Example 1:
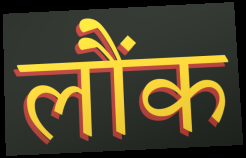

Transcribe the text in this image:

लौंक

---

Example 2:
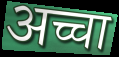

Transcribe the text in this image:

अच्चा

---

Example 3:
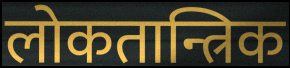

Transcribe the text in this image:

लोकतान्त्रिक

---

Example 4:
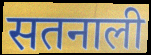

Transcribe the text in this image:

सतनाली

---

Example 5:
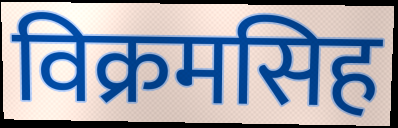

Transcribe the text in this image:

विक्रमसिह